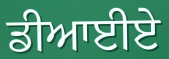
ਡੀਆਈਏ